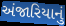
અંજારિયાનું